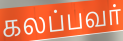
கலப்பவர்